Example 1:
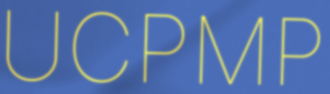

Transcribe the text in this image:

UCPMP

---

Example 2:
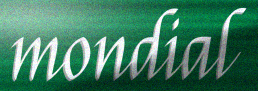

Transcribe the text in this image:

mondial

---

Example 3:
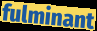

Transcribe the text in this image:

fulminant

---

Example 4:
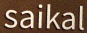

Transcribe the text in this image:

saikal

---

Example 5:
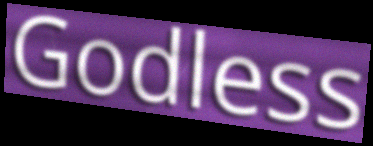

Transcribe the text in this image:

Godless